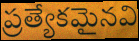
ప్రత్యేకమైనవి